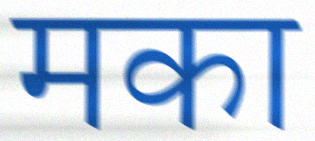
मका